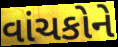
વાંચકોને